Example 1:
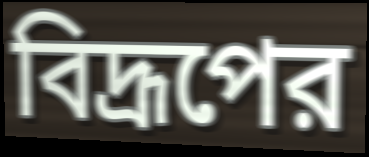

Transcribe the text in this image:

বিদ্রূপের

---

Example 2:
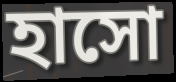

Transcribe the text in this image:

হাসো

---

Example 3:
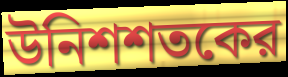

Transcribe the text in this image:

উনিশশতকের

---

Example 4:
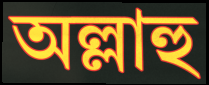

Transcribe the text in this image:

অল্লাহু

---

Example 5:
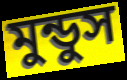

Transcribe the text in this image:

মুন্ডুস